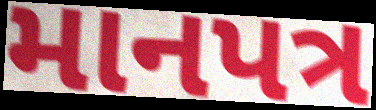
માનપત્ર